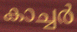
കാച്ചർ